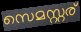
സെമസ്റ്റര്